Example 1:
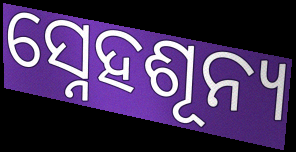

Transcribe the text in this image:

ସ୍ନେହଶୂନ୍ୟ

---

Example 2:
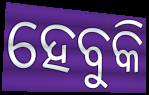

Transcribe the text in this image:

ହେବୁକି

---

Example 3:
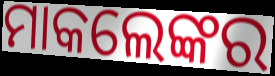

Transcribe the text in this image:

ମାକଲେଙ୍କର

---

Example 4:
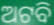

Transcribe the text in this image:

ଅଟବି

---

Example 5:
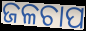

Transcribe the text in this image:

ଜଳଚାପ